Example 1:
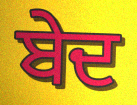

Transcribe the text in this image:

ਬੇਦ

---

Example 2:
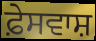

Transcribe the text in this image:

ਫ਼ੇਸਵਾਸ਼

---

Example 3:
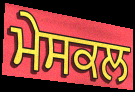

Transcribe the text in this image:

ਮੇਸਕਲ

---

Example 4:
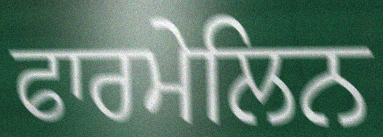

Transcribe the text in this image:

ਫਾਰਮੇਲਿਨ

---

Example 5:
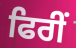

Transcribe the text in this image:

ਫਿਰੀਂ